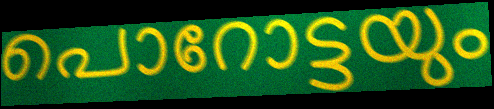
പൊറോട്ടയും